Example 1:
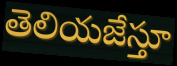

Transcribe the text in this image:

తెలియజేస్తూ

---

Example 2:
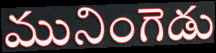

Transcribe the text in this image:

మునింగెడు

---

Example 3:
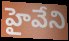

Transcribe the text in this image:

హైవేని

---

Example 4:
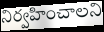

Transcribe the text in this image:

నిర్వహించాలని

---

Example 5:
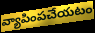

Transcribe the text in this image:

వ్యాపింపచేయటం